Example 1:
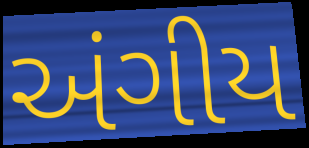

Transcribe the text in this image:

અંગીય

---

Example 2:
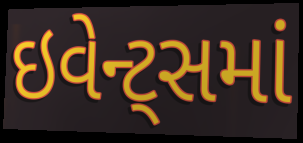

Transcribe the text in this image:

ઇવેન્ટ્સમાં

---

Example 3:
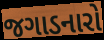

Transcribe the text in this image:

જગાડનારો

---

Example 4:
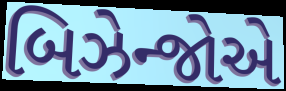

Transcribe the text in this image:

બિઝેન્જોએ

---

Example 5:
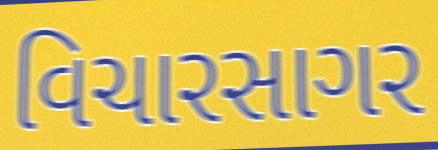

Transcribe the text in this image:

વિચારસાગર